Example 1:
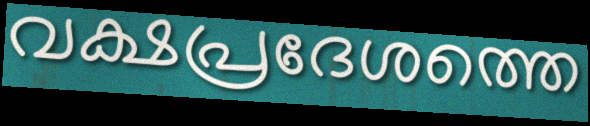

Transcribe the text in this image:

വക്ഷപ്രദേശത്തെ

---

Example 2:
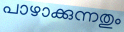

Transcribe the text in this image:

പാഴാക്കുന്നതും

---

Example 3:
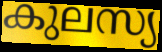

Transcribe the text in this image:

കുലസ്യ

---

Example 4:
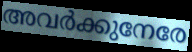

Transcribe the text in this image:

അവർക്കുനേരേ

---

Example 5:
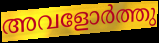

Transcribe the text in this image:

അവളോർത്തു